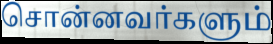
சொன்னவர்களும்